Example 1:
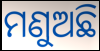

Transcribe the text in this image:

ମଣୁଅଛି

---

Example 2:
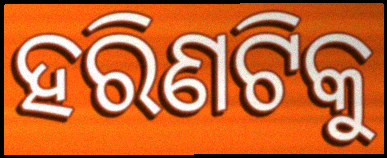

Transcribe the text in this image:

ହରିଣଟିକୁ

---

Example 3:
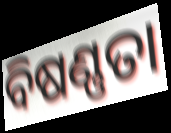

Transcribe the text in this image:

ବିଷଣ୍ଣତା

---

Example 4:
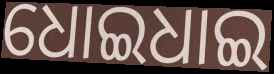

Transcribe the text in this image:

ଧୋଇଧାଇ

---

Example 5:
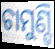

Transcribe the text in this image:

ଚାମୁଣ୍ଡି